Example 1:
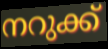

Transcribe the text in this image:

നറുക്ക്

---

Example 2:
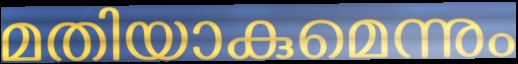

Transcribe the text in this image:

മതിയാകുമെന്നും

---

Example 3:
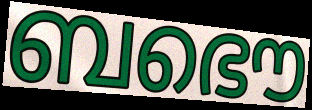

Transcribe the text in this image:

ബഭൌ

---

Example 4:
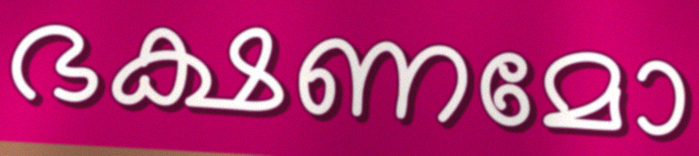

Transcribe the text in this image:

ഭക്ഷണമോ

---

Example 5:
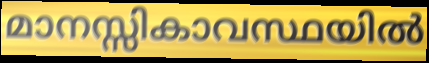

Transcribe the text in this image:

മാനസ്സികാവസ്ഥയിൽ